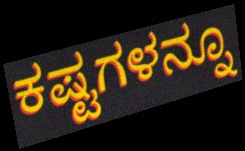
ಕಷ್ಟಗಳನ್ನೂ